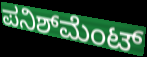
ಪನಿಶ್‌ಮೆಂಟ್